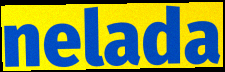
nelada